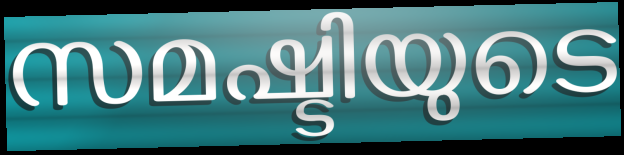
സമഷ്ടിയുടെ